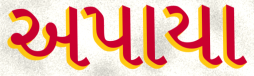
અપાયા